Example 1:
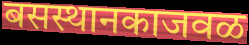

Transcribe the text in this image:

बसस्थानकाजवळ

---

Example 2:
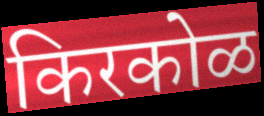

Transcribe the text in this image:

किरकोळ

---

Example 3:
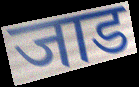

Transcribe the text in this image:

जाड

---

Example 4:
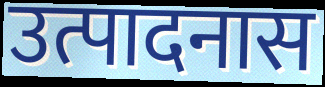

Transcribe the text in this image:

उत्पादनास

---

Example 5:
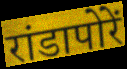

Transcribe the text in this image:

रांडापोरें